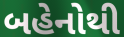
બહેનોથી